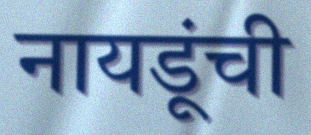
नायडूंची